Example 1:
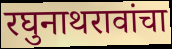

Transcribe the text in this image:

रघुनाथरावांचा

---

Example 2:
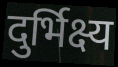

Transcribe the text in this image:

दुर्भिक्ष्य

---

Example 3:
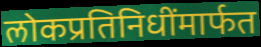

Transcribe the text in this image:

लोकप्रतिनिधींमार्फत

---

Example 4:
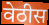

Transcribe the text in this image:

वेठीस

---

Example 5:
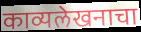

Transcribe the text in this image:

काव्यलेखनाचा